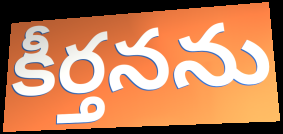
కీర్తనను